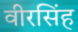
वीरसिंह